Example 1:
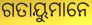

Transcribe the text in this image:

ଗତାୟୁମାନେ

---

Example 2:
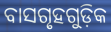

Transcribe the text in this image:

ବାସଗୃହଗୁଡ଼ିକ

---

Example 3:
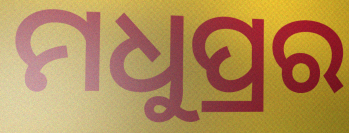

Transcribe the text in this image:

ମଧୁପ୍ରର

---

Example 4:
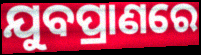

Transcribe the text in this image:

ଯୁବପ୍ରାଣରେ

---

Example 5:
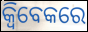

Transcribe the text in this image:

କ୍ୱିବେକରେ